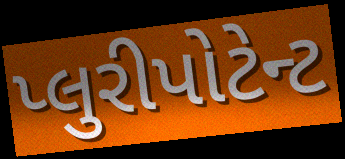
પ્લુરીપોટેન્ટ